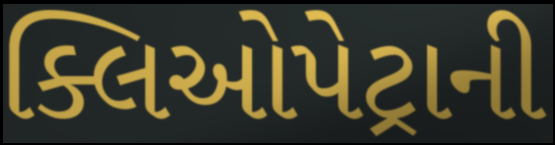
ક્લિઓપેટ્રાની